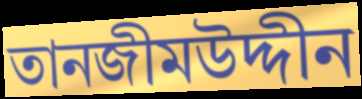
তানজীমউদ্দীন